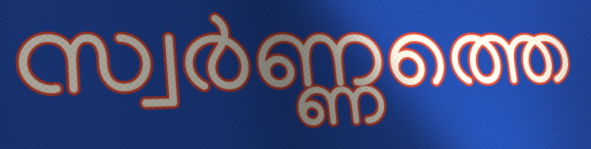
സ്വർണ്ണത്തെ